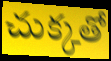
చుక్కతో